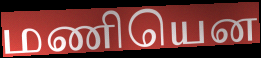
மணியென